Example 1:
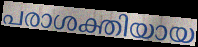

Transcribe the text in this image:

പരാശക്തിയായ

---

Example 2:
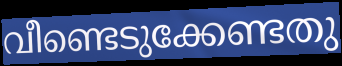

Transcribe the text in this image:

വീണ്ടെടുക്കേണ്ടതു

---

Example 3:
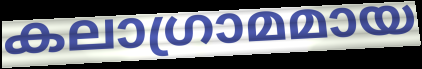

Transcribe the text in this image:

കലാഗ്രാമമായ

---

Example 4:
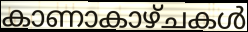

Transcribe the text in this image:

കാണാകാഴ്ചകൾ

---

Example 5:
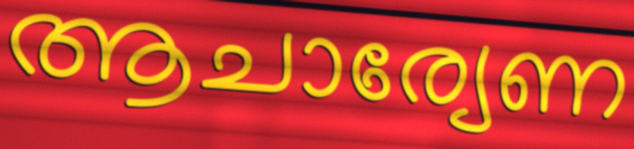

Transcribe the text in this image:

ആചാര്യേണ